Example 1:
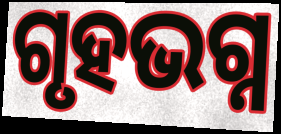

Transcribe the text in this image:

ଗୃହଭଗ୍ନ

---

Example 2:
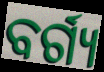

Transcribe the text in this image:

ବର୍ଗ୍ୟ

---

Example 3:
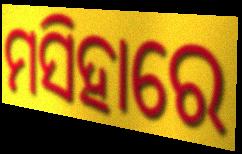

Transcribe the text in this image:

ମସିହାରେ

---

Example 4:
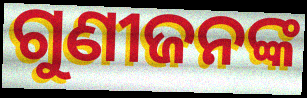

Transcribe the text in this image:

ଗୁଣୀଜନଙ୍କ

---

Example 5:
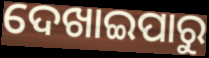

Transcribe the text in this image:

ଦେଖାଇପାରୁ